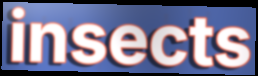
insects